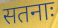
सतनाः